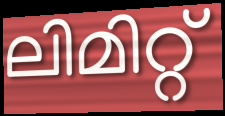
ലിമിറ്റ്